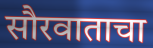
सौरवाताचा